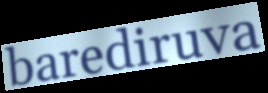
barediruva